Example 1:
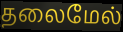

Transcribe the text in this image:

தலைமேல்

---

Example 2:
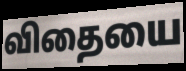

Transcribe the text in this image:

விதையை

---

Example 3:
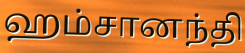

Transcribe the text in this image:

ஹம்சானந்தி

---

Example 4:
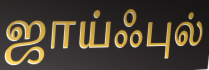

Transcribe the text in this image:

ஜாய்ஃபுல்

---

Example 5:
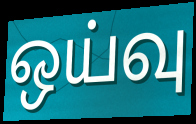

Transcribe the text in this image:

ஒய்வு